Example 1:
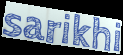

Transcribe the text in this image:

sarikhi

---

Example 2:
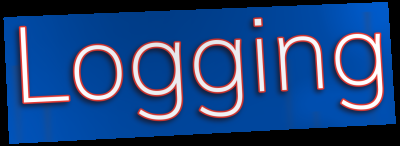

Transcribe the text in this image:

Logging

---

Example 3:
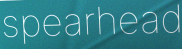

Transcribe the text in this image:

spearhead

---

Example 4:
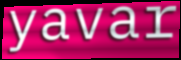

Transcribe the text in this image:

yavar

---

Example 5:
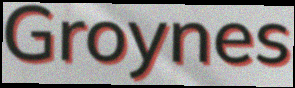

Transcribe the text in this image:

Groynes